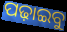
ପଢ଼ାଇବୁ